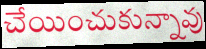
చేయించుకున్నావు